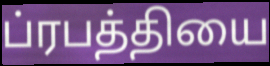
ப்ரபத்தியை